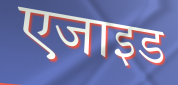
एजाइड